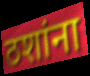
ठशांना